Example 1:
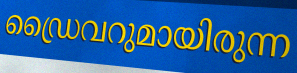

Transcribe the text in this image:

ഡ്രൈവറുമായിരുന്ന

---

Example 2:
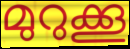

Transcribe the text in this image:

മുറുക്കൂ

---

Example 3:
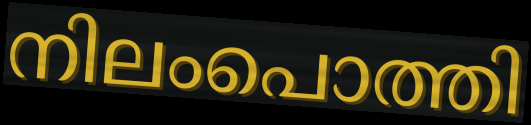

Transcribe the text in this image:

നിലംപൊത്തി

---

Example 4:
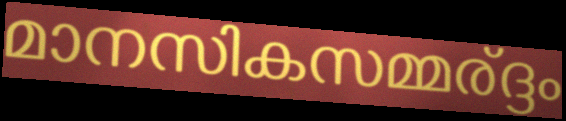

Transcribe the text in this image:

മാനസികസമ്മര്ദ്ദം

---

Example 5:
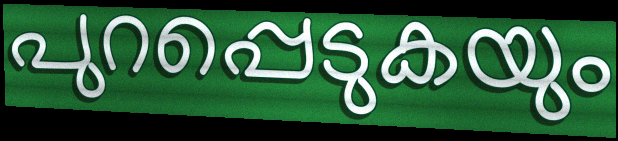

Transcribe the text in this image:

പുറപ്പെടുകയും